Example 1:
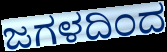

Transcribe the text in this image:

ಜಗಳದಿಂದ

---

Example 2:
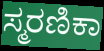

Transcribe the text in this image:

ಸ್ಮರಣಿಕಾ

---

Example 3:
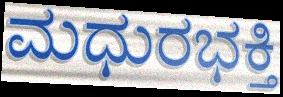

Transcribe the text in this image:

ಮಧುರಭಕ್ತಿ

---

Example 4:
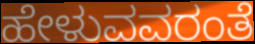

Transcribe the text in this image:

ಹೇಳುವವರಂತೆ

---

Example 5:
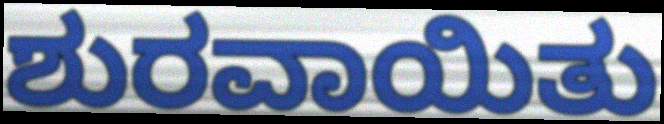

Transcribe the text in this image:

ಶುರವಾಯಿತು